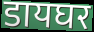
डायघर